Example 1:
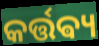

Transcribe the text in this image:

କର୍ତ୍ତଵ୍ୟ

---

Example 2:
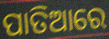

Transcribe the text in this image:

ପାତିଆରେ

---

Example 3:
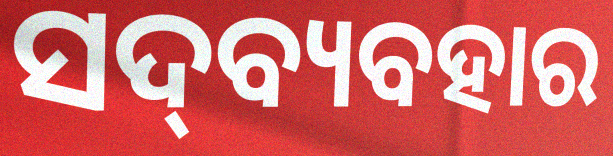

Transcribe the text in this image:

ସଦ୍‍ବ୍ୟବହାର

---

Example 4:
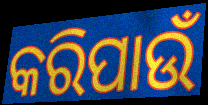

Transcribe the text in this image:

କରିପାଉଁ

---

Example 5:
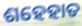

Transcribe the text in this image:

ଶହେହାତ